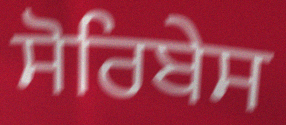
ਸੋਰਿਬੇਸ